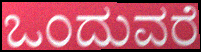
ಒಂದುವರೆ